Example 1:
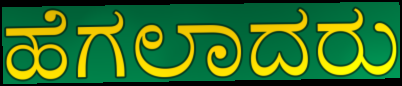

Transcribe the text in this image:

ಹೆಗಲಾದರು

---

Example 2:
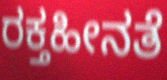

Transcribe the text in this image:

ರಕ್ತಹೀನತೆ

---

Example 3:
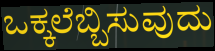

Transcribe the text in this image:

ಒಕ್ಕಲೆಬ್ಬಿಸುವುದು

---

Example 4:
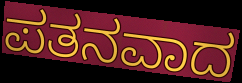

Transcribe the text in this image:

ಪತನವಾದ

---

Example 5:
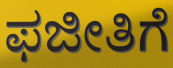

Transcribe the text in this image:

ಫಜೀತಿಗೆ